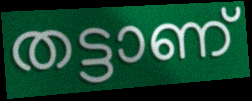
തട്ടാണ്